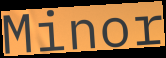
Minor